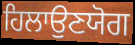
ਹਿਲਾਉਣਯੋਗ